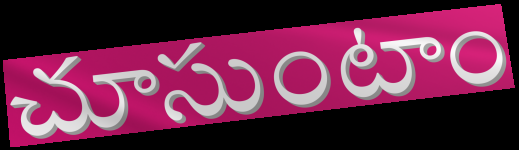
చూసుంటాం